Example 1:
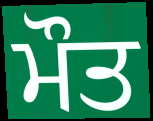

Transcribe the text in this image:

ਮੌਤ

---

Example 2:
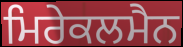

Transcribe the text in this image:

ਮਿਰੇਕਲਮੈਨ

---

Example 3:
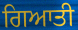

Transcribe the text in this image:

ਗਿਆਤੀ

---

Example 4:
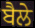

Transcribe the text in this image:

ਬੈਲੇ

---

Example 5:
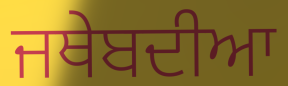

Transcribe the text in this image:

ਜਥੇਬਦੀਆ